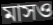
মাসও